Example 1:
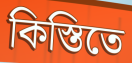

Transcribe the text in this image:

কিস্তিতে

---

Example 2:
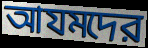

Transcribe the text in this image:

আযমদের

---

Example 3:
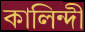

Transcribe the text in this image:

কালিন্দী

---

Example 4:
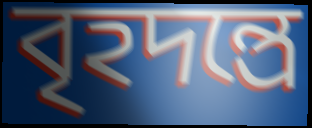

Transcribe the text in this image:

বৃহদন্ত্রে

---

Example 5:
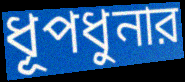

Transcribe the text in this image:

ধূপধুনার